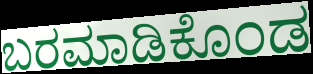
ಬರಮಾಡಿಕೊಂಡ